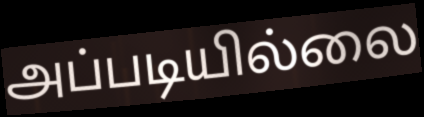
அப்படியில்லை